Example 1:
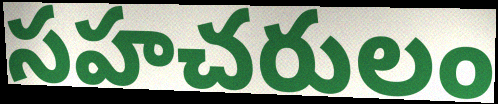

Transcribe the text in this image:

సహచరులం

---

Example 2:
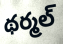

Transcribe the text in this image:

థర్మల్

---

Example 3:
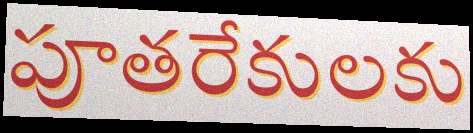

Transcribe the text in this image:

పూతరేకులకు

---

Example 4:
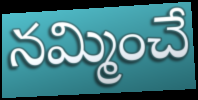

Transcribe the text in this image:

నమ్మించే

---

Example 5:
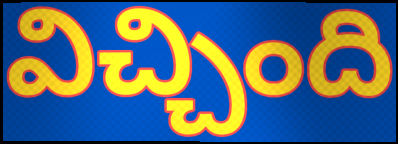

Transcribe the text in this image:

విచ్చింది